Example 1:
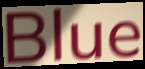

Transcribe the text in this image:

Blue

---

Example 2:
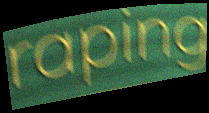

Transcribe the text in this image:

raping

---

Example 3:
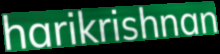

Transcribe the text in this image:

harikrishnan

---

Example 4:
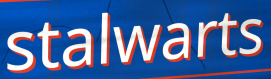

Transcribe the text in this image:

stalwarts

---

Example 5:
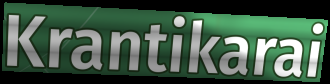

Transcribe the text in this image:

Krantikarai